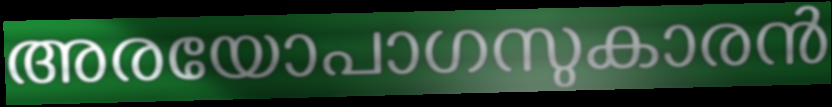
അരയോപാഗസുകാരൻ